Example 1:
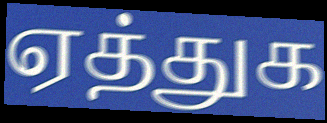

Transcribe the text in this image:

ஏத்துக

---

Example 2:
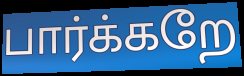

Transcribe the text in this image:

பார்க்கறே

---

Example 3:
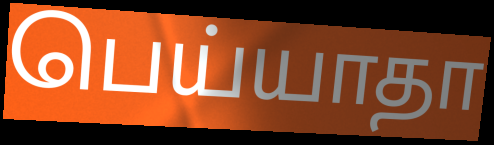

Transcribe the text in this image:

பெய்யாதா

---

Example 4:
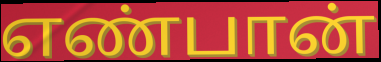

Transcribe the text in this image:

எண்பான்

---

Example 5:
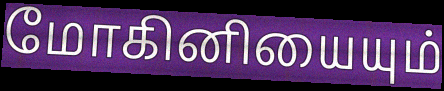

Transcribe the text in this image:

மோகினியையும்